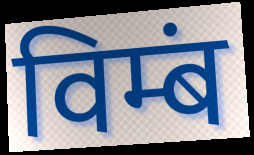
विम्बं